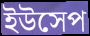
ইউসেপ